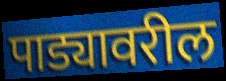
पाड्यावरील